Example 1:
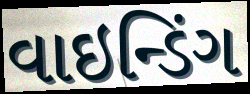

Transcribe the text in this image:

વાઇન્ડિંગ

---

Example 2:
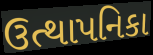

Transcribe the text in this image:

ઉત્થાપનિકા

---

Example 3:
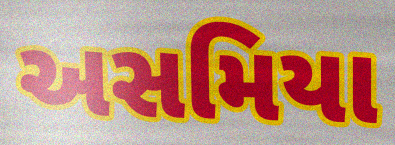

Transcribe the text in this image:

અસમિયા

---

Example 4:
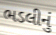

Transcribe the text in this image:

ભડલીનું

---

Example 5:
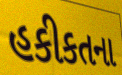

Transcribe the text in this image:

હકીકતના